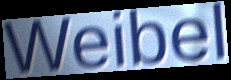
Weibel